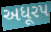
અધૂરપ